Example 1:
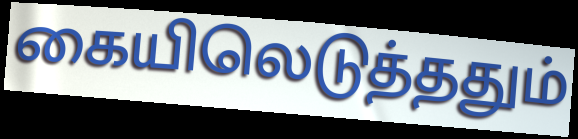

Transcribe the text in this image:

கையிலெடுத்ததும்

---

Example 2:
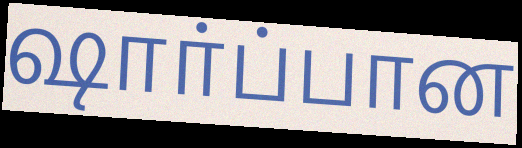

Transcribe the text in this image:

ஷார்ப்பான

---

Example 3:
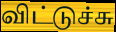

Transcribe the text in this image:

விட்டுச்சு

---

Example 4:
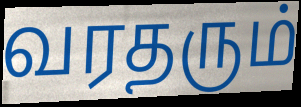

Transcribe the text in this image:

வரதரும்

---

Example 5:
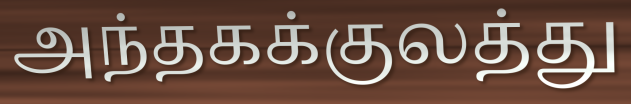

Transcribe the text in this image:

அந்தகக்குலத்து